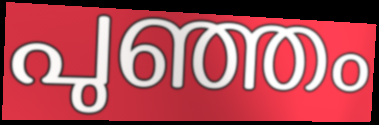
പുഞ്ഞം